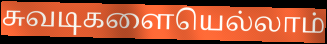
சுவடிகளையெல்லாம்